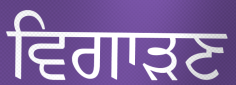
ਵਿਗਾੜਣ